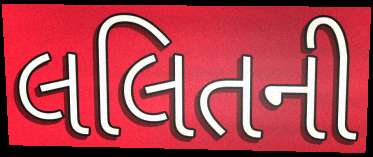
લલિતની